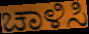
ಚಾಳಿಸಿ